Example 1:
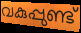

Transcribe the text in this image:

വകുപ്പുണ്ട്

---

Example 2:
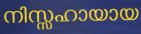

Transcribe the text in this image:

നിസ്സഹായായ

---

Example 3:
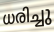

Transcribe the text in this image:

ധരിച്ചു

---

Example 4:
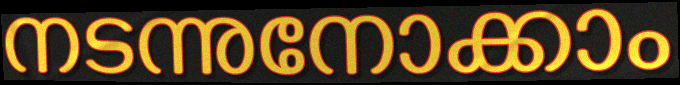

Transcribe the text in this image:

നടന്നുനോക്കാം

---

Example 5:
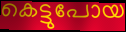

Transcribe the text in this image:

കെട്ടുപോയ